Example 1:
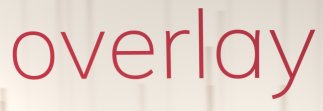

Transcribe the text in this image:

overlay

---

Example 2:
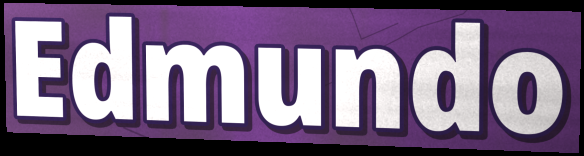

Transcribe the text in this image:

Edmundo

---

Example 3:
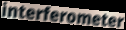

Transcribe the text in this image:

interferometer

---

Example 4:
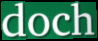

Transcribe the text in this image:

doch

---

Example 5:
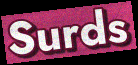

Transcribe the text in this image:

Surds